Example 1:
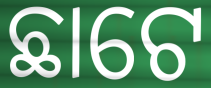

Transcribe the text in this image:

ଛାଟେ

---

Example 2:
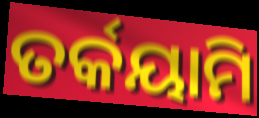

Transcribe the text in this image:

ତର୍କୟାମି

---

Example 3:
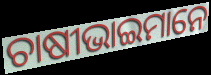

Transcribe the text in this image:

ଚାଷୀଭାଇମାନେ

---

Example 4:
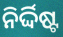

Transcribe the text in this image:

ନିର୍ଦ୍ଦିଷ୍ଟ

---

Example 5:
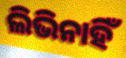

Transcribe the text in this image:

ଲିଭିନାହିଁ